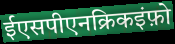
ईएसपीएनक्रिकइंफ़ो